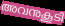
അവനുകൂടി